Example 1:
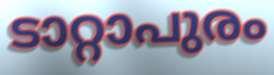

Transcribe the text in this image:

ടാറ്റാപുരം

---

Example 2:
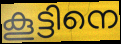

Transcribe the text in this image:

കൂട്ടിനെ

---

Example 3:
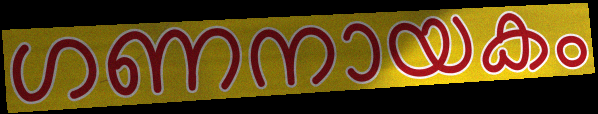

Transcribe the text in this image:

ഗണനായകം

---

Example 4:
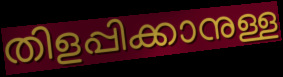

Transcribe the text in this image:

തിളപ്പിക്കാനുള്ള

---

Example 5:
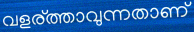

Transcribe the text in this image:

വളര്ത്താവുന്നതാണ്